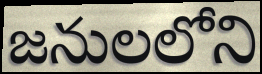
జనులలోని